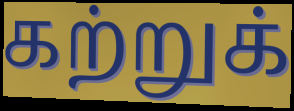
கற்றுக்